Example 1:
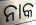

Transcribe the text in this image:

ନାକ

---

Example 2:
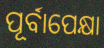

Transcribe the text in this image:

ପୂର୍ବାପେକ୍ଷା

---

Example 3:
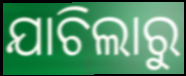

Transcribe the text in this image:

ଯାଚିଲାରୁ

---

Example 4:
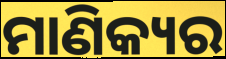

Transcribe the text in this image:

ମାଣିକ୍ୟର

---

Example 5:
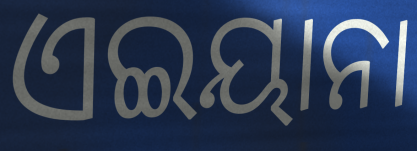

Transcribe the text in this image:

ଏଇୟାନା